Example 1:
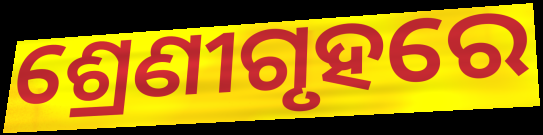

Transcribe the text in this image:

ଶ୍ରେଣୀଗୃହରେ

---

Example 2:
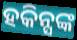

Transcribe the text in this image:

ହକିନ୍ସଙ୍କ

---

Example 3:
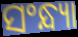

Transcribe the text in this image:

ସଂନ୍ଧ୍ଯା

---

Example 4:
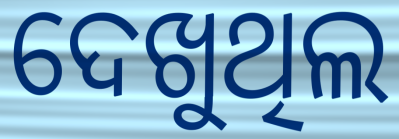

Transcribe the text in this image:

ଦେଖୁଥିଲ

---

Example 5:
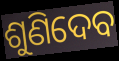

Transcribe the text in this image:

ଶୁଣିଦେବ